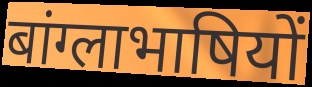
बांग्लाभाषियों